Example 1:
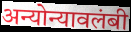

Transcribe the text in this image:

अन्योन्यावलंबी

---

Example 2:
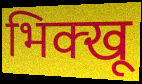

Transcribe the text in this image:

भिक्‍खू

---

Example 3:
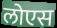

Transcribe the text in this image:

लोएस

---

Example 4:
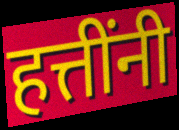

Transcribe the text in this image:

हत्तींनी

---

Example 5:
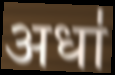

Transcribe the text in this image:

अधा॑